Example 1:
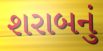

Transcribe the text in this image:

શરાબનું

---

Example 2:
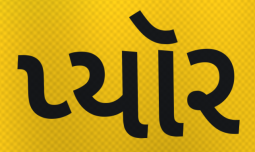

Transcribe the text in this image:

પ્યૉર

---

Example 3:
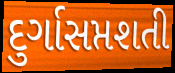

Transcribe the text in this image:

દુર્ગાસપ્તશતી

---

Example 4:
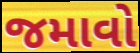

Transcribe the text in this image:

જમાવો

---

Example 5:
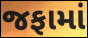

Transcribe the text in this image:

જફામાં